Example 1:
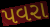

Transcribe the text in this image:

પવરા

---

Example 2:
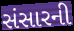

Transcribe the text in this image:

સંસારની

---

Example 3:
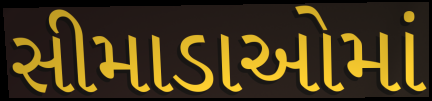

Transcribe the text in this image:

સીમાડાઓમાં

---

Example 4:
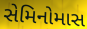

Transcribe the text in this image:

સેમિનોમાસ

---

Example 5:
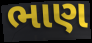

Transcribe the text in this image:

ભાણ